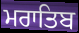
ਮਰਾਤਿਬ